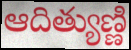
ఆదిత్యుణ్ణి